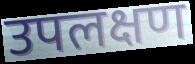
उपलक्षण